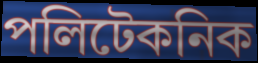
পলিটেকনিক